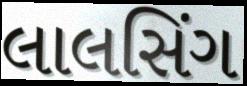
લાલસિંગ